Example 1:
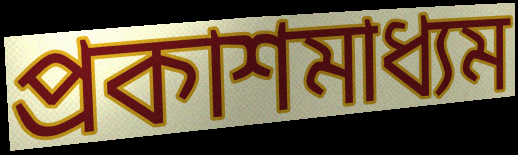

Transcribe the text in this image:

প্রকাশমাধ্যম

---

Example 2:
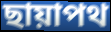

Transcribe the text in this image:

ছায়াপথ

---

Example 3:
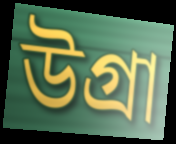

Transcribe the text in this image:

উগ্রা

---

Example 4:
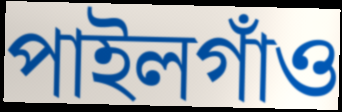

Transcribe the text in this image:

পাইলগাঁও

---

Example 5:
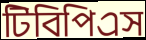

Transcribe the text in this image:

টিবিপিএস